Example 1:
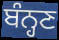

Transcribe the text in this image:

ਬੰਨ੍ਹਣ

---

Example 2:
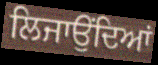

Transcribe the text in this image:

ਲਿਜਾਉਂਦਿਆਂ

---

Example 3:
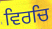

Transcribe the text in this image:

ਵਿਰਚਿ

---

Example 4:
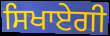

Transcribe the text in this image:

ਸਿਖਾਏਗੀ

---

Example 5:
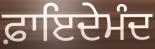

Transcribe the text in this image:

ਫ਼ਾਇਦੇਮੰਦ